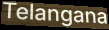
Telangana